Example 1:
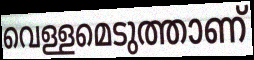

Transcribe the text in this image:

വെള്ളമെടുത്താണ്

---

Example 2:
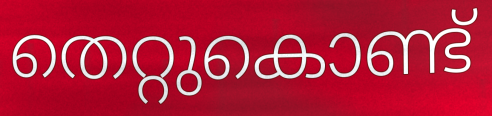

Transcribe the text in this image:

തെറ്റുകൊണ്ട്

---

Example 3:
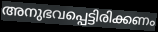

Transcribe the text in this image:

അനുഭവപ്പെട്ടിരിക്കണം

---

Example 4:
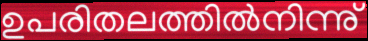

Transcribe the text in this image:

ഉപരിതലത്തിൽനിന്നു്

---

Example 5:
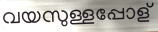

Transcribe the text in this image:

വയസുള്ളപ്പോള്